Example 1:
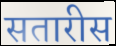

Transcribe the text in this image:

सतारीस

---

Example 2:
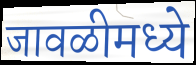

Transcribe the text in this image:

जावळीमध्ये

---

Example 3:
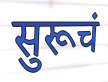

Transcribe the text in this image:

सुरूचं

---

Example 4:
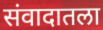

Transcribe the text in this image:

संवादातला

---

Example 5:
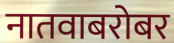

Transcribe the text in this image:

नातवाबरोबर